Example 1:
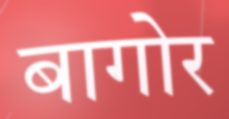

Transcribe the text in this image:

बागोर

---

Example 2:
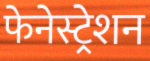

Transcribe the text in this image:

फेनेस्ट्रेशन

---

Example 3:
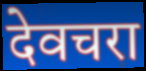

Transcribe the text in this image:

देवचरा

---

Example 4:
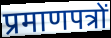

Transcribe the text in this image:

प्रमाणपत्रों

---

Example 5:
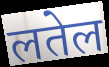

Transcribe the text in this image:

लतेल